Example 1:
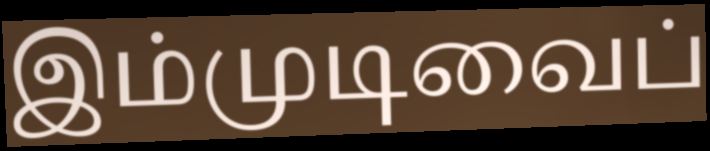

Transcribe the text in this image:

இம்முடிவைப்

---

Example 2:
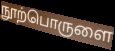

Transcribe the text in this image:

நூற்பொருளை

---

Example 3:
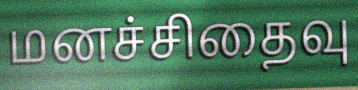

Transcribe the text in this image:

மனச்சிதைவு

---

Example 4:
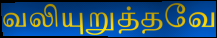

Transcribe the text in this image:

வலியுறுத்தவே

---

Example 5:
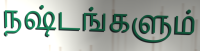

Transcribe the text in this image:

நஷ்டங்களும்